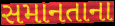
સમાનતાના